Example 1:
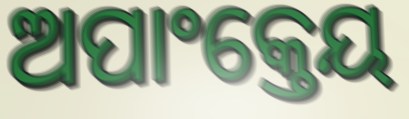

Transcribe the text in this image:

ଅପାଂକ୍ତେୟ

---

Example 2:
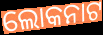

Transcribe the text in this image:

ଲୋକନାଟ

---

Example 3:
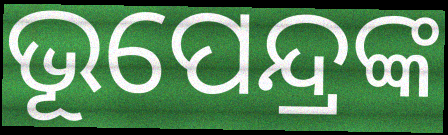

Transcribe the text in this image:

ଭୂପେନ୍ଦ୍ରଙ୍କ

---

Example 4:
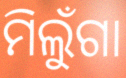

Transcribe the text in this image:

ମିଲୁଁଗା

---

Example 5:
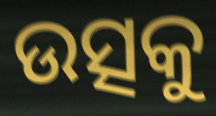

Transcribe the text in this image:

ଉତ୍ସକୁ